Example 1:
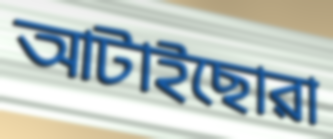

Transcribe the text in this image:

আটাইছোৱা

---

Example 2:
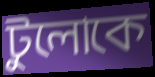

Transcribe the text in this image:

টুলোকে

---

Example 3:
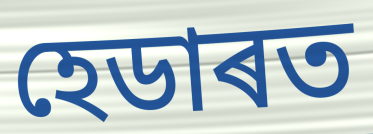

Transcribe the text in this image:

হেডাৰত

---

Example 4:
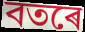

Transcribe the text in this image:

বতৰে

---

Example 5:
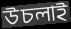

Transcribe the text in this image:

উচলাই